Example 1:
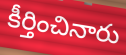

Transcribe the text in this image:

కీర్తించినారు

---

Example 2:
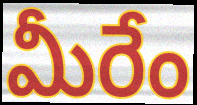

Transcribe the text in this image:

మీరేం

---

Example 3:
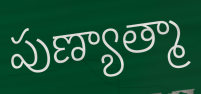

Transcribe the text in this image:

పుణ్యాత్మా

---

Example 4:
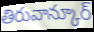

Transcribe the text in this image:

తిరువాన్కూర్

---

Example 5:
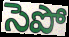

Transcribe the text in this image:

సెపో